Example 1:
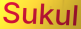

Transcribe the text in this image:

Sukul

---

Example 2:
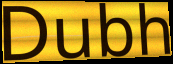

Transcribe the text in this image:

Dubh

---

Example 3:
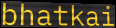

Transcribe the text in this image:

bhatkai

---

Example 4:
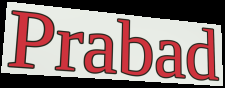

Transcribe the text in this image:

Prabad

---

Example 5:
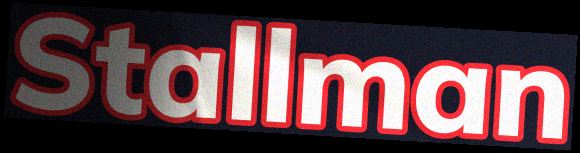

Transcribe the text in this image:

Stallman